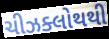
ચીઝક્લોથથી